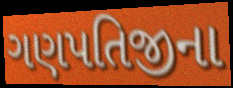
ગણપતિજીના